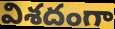
విశదంగా